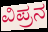
ವಿಪ್ರನ